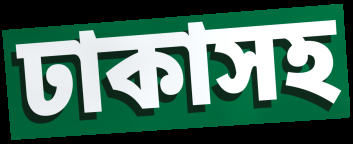
ঢাকাসহ